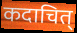
कदाचित्